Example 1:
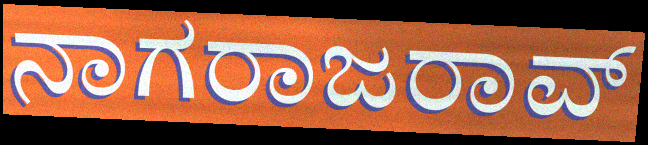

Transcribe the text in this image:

ನಾಗರಾಜರಾವ್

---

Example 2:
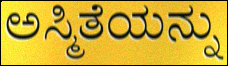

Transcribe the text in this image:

ಅಸ್ಮಿತೆಯನ್ನು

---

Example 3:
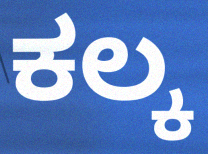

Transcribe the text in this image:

ಕಲ್ಕ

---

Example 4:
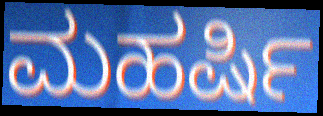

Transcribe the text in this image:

ಮಹರ್ಷಿ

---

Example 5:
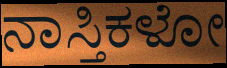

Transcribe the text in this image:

ನಾಸ್ತಿಕಳೋ